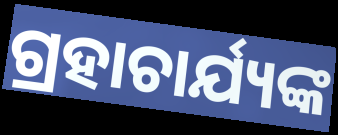
ଗ୍ରହାଚାର୍ଯ୍ୟଙ୍କ